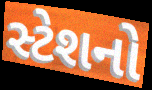
સ્ટેશનો